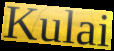
Kulai